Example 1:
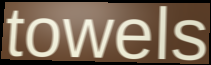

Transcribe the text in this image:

towels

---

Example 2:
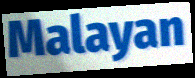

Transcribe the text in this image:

Malayan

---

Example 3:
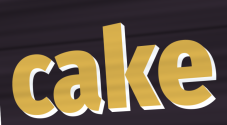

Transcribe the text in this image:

cake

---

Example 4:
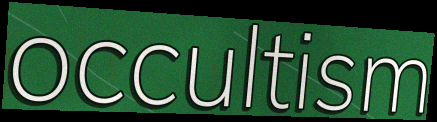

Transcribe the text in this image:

occultism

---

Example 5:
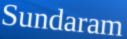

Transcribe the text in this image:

Sundaram